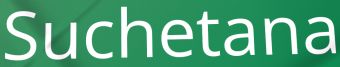
Suchetana